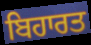
ਬਿਹਾਰਤ